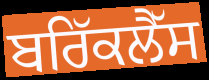
ਬਰਿੱਕਲੈੱਸ